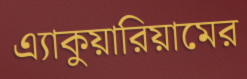
এ্যাকুয়ারিয়ামের